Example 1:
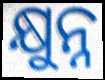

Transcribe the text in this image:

କ୍ଷୁନ୍ନ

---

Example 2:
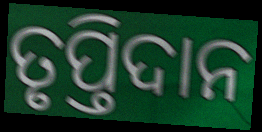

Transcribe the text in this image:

ତୃପ୍ତିଦାନ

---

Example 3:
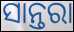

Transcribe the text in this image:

ସାନ୍ତରା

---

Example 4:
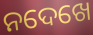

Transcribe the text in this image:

ନଦେଖେ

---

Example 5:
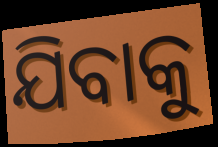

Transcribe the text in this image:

ଯିବାକୁ